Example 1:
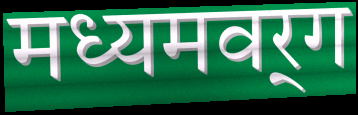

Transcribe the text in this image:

मध्यमवर्ग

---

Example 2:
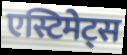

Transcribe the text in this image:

एस्टिमेट्स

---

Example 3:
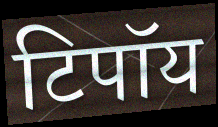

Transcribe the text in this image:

टिपॉय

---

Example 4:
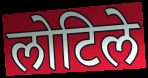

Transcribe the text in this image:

लोटिले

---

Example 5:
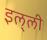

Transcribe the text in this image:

इल्ली